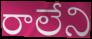
రాలేని